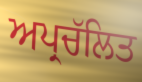
ਅਪ੍ਰਚੱਲਿਤ